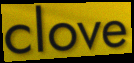
clove